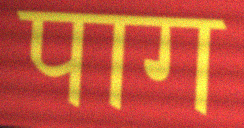
पाग